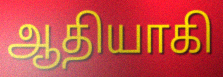
ஆதியாகி